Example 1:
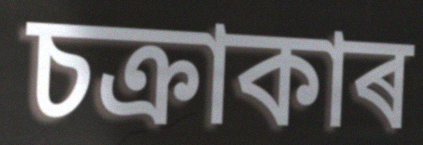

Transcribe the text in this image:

চক্ৰাকাৰ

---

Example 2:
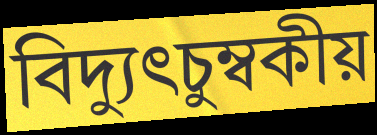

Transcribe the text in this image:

বিদ্যুৎচুম্বকীয়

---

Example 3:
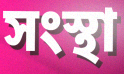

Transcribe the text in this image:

সংস্থা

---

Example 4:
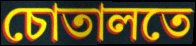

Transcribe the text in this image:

চোতালতে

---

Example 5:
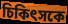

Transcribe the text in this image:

চিকিৎসকে